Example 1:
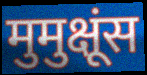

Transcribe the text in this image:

मुमुक्षूंस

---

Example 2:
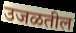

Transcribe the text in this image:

उजळतील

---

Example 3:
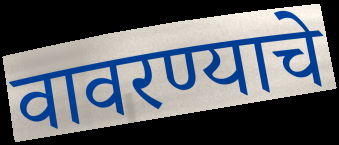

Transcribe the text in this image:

वावरण्याचे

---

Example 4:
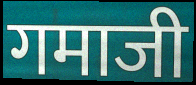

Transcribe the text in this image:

गमाजी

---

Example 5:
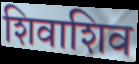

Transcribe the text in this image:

शिवाशिव